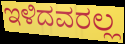
ಇಳಿದವರಲ್ಲ